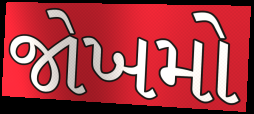
જોખમો